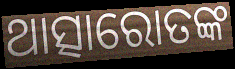
ଥାତ୍ସାରୋତଙ୍କ